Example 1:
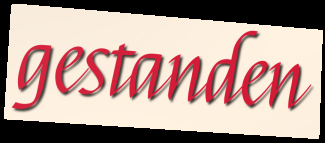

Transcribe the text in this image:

gestanden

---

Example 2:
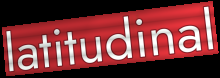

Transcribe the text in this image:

latitudinal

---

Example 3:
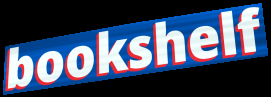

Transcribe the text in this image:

bookshelf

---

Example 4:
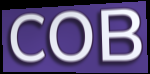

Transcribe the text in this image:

COB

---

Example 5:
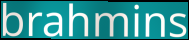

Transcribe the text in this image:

brahmins